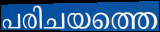
പരിചയത്തെ